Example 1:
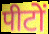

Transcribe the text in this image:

पीटों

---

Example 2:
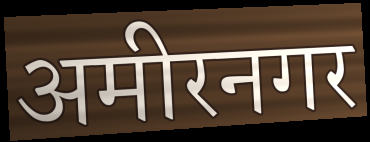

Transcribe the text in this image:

अमीरनगर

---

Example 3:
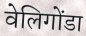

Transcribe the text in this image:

वेलिगोंडा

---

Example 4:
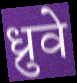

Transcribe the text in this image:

ध्रुवे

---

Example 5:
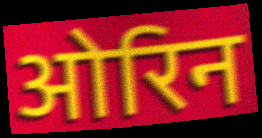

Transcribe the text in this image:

ओरिन